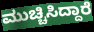
ಮುಚ್ಚಿಸಿದ್ದಾರೆ